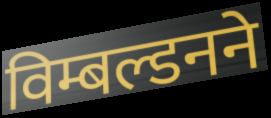
विम्बल्डनने